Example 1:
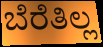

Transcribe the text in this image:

ಬೆರೆತಿಲ್ಲ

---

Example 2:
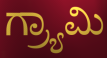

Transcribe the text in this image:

ಗ್ರ್ಯಾಮಿ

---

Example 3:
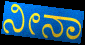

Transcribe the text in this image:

ನೀನಾ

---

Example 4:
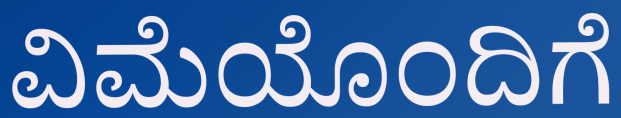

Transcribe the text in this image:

ವಿಮೆಯೊಂದಿಗೆ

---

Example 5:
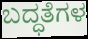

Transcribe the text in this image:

ಬದ್ಧತೆಗಳ